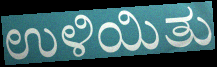
ಉಳಿಯಿತು